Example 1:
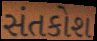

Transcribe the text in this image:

સંતકોશ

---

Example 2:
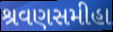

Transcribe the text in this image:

શ્રવણસમીહા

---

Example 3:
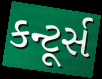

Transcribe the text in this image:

કન્ટૂર્સ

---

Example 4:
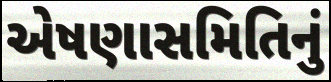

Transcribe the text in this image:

એષણાસમિતિનું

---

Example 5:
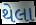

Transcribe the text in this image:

થેલા